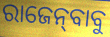
ରାଜେନ୍‌ବାବୁ